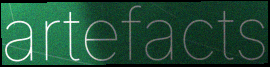
artefacts